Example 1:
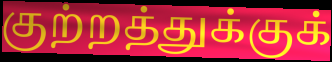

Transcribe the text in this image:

குற்றத்துக்குக்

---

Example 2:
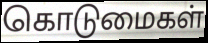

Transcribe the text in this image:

கொடுமைகள்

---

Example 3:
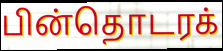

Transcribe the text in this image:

பின்தொடரக்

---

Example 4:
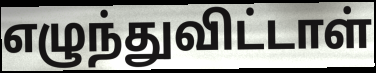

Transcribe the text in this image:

எழுந்துவிட்டாள்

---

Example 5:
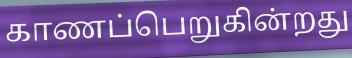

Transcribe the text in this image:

காணப்பெறுகின்றது